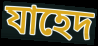
যাহেদ